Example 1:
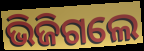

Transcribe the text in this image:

ଭିଜିଗଲେ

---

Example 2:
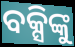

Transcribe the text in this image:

ବକ୍ସିଙ୍କୁ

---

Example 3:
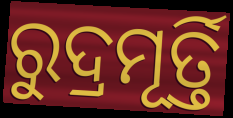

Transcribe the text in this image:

ରୁଦ୍ରମୂର୍ତ୍ତି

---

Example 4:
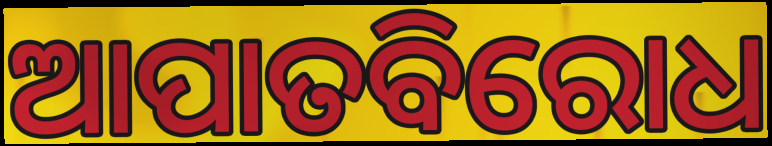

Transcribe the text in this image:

ଆପାତବିରୋଧ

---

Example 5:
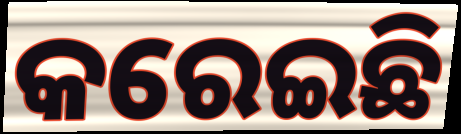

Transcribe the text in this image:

କରେଇଛି